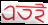
এতই